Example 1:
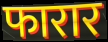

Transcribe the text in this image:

फारार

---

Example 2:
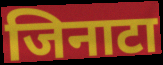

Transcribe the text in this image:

जिनाटा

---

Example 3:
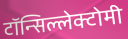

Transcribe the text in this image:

टॉन्सिल्लेक्टोमी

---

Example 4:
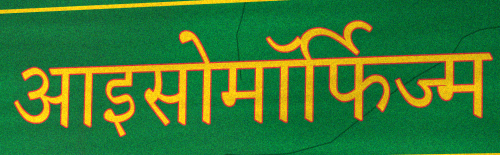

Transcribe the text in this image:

आइसोमॉर्फिज्म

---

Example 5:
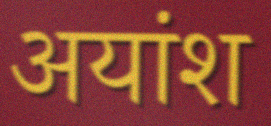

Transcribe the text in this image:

अयांश